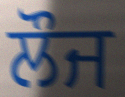
ਲੌਜ